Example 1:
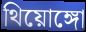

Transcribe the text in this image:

থিয়োঙ্গো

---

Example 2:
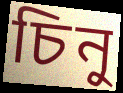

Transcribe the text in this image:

চিনু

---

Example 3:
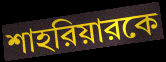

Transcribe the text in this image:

শাহরিয়ারকে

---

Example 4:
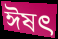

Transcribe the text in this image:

ঈষত্‍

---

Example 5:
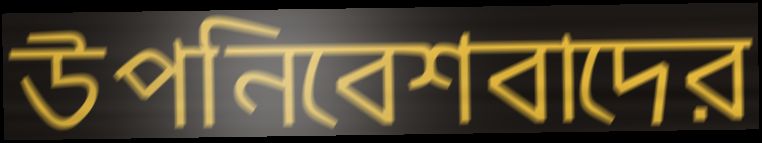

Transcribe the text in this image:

উপনিবেশবাদের